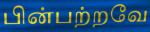
பின்பற்றவே